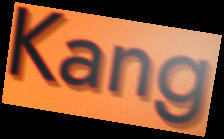
Kang